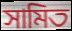
সামিত